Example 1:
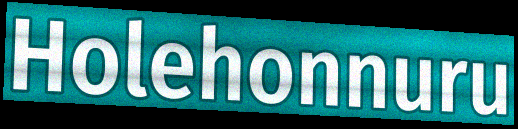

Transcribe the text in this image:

Holehonnuru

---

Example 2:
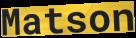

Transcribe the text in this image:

Matson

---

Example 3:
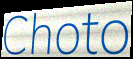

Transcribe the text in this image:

Choto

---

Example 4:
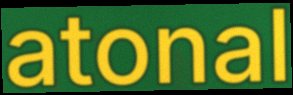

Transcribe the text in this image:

atonal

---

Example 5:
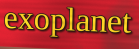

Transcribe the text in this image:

exoplanet